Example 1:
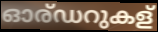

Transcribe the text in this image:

ഓര്ഡറുകള്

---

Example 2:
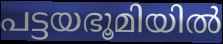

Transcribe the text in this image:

പട്ടയഭൂമിയിൽ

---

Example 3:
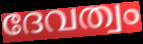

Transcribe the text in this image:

ദേവത്വം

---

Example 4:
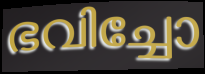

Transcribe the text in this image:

ഭവിച്ചോ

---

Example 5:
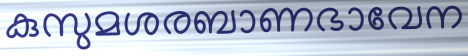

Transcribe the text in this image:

കുസുമശരബാണഭാവേന